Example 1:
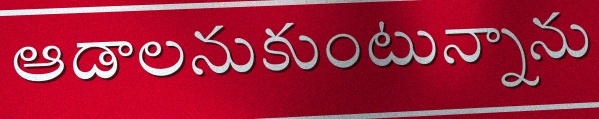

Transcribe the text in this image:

ఆడాలనుకుంటున్నాను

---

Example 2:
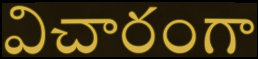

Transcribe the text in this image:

విచారంగా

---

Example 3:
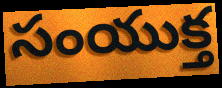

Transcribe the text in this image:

సంయుక్త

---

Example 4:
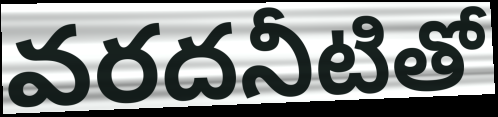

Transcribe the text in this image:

వరదనీటితో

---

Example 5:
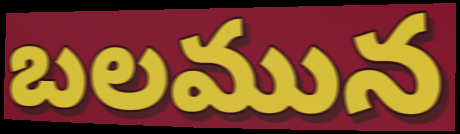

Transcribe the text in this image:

బలమున